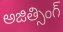
అజిత్సింగ్